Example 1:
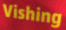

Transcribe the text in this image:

Vishing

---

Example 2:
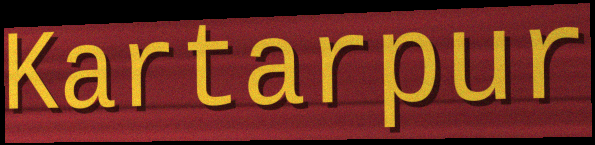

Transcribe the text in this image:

Kartarpur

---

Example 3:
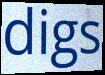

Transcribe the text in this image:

digs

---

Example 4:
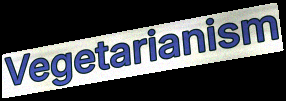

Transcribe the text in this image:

Vegetarianism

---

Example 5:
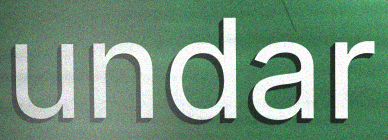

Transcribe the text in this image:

undar